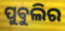
ପୁବୁଲିର